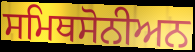
ਸਮਿਥਸੋਨੀਅਨ